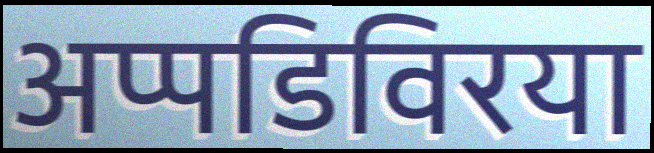
अप्पडिविरया